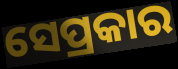
ସେପ୍ରକାର